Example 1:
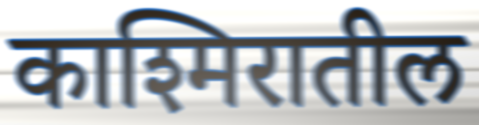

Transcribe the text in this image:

काश्मिरातील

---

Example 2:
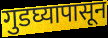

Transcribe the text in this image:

गुडघ्यापासून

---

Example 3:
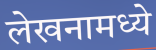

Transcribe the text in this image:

लेखनामध्ये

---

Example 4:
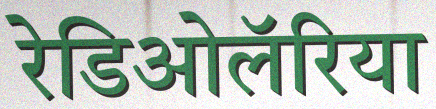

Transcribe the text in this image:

रेडिओलॅरिया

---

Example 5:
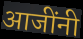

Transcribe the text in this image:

आजींनी